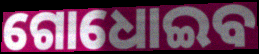
ଗୋଧୋଇବ